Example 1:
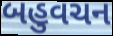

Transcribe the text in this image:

બહુવચન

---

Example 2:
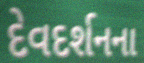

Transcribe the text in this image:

દેવદર્શનના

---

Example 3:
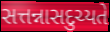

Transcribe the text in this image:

સત્તન્નાસદુચ્યતે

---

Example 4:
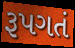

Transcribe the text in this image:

રૂપગતં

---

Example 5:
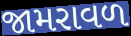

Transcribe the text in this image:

જામરાવળ